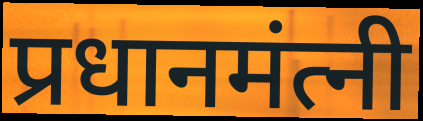
प्रधानमंत्नी